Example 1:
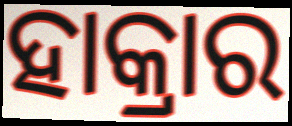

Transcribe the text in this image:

ହାକ୍ରାର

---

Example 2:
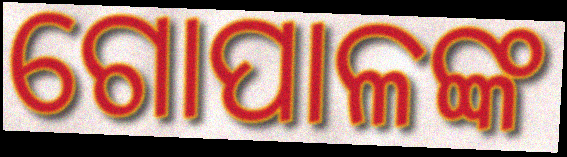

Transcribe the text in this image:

ଗୋପାଳଙ୍କ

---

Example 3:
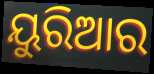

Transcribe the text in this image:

ୟୁରିଆର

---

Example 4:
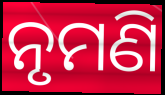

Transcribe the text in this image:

ନୃମଣି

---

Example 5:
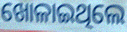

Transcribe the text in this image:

ଖୋଳାଇଥିଲେ